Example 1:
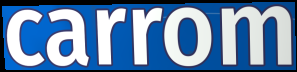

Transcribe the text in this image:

carrom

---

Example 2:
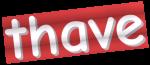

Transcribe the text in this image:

thave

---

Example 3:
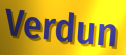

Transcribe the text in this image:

Verdun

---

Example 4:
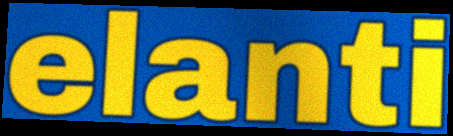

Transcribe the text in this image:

elanti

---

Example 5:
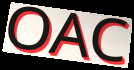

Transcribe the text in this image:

OAC